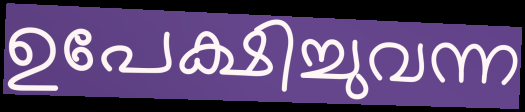
ഉപേക്ഷിച്ചുവന്ന